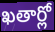
ఖతార్లో